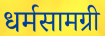
धर्मसामग्री